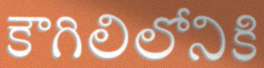
కౌగిలిలోనికి